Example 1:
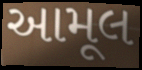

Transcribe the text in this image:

આમૂલ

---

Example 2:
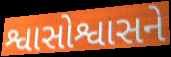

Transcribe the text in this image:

શ્વાસોશ્વાસને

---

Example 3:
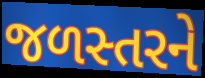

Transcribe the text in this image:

જળસ્તરને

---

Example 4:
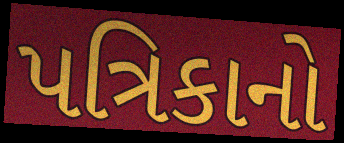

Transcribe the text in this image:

પત્રિકાનો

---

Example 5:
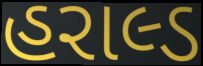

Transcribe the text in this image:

હરાલ્ડ